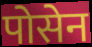
पोसेन